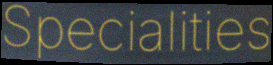
Specialities